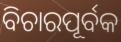
ବିଚାରପୂର୍ବକ